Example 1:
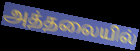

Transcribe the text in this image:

அத்தலையில்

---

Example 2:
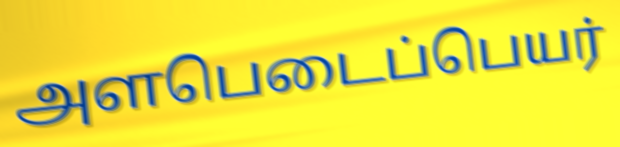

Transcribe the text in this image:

அளபெடைப்பெயர்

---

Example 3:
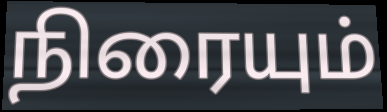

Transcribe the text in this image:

நிரையும்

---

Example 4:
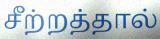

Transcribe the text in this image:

சீற்றத்தால்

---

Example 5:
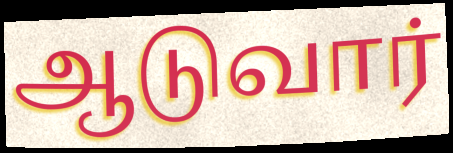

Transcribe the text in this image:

ஆடுவார்